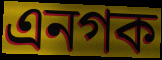
এনগক